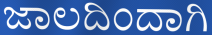
ಜಾಲದಿಂದಾಗಿ